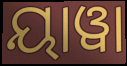
ୟାୱା